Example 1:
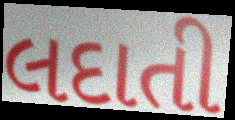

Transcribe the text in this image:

લદાતી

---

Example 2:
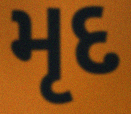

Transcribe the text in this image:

મૃદ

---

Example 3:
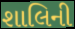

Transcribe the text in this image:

શાલિની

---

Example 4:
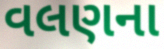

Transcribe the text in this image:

વલણના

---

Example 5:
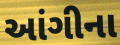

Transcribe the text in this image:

આંગીના